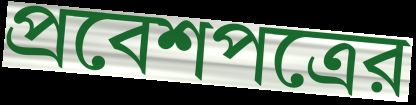
প্রবেশপত্রের